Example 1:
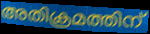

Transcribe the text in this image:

അതിക്രമത്തിന്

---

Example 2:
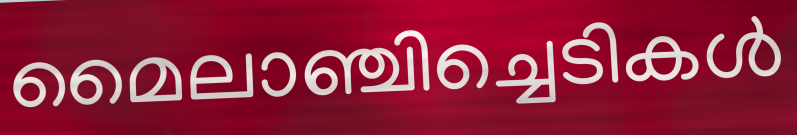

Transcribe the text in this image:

മൈലാഞ്ചിച്ചെടികൾ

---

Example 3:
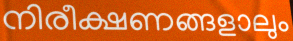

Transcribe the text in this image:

നിരീക്ഷണങ്ങളാലും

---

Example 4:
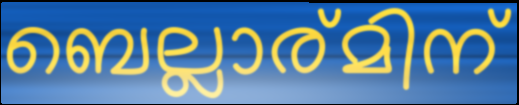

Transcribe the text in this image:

ബെല്ലാര്മിന്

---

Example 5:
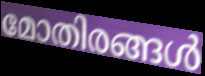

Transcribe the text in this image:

മോതിരങ്ങൾ